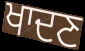
ਖਾਦਣ